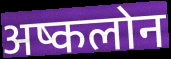
अष्कलोन